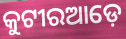
କୁଟୀରଆଡ଼େ